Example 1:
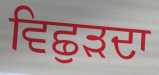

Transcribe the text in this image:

ਵਿਛੁੜਦਾ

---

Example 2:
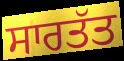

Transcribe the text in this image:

ਸਾਰਤੱਤ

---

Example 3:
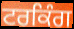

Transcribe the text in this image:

ਟਰਕਿੰਗ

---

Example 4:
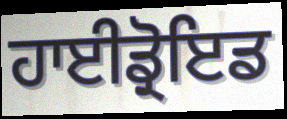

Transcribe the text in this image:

ਹਾਈਡ੍ਰੋਇਡ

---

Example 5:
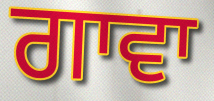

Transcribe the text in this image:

ਗਾਵਾ